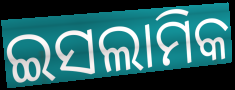
ଇସଲାମିକ